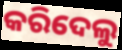
କରିଦେଲୁ